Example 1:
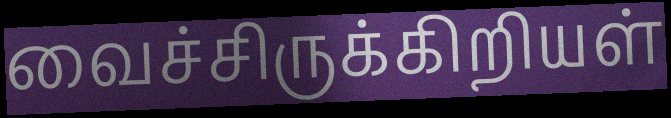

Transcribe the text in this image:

வைச்சிருக்கிறியள்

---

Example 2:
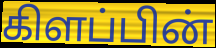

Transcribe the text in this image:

கிளப்பின்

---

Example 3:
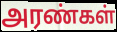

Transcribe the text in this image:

அரண்கள்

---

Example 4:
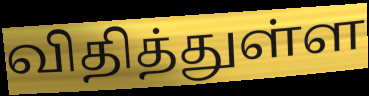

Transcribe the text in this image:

விதித்துள்ள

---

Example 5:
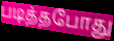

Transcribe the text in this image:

படித்தபோது